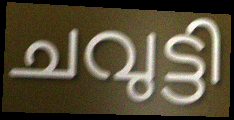
ചവുട്ടി